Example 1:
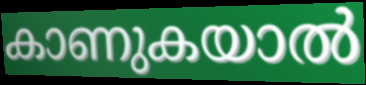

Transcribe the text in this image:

കാണുകയാൽ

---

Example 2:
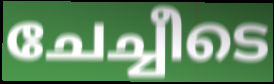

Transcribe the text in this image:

ചേച്ചീടെ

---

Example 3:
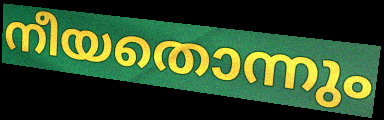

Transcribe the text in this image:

നീയതൊന്നും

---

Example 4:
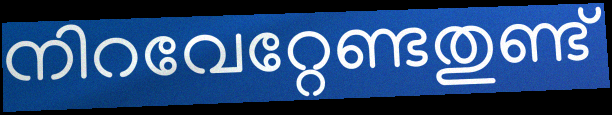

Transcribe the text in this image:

നിറവേറ്റേണ്ടതുണ്ട്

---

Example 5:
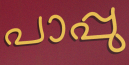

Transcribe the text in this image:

പാപ്പു